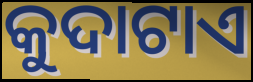
କୁଦାଟାଏ